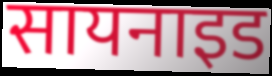
सायनाइड